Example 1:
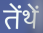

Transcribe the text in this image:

तेंथें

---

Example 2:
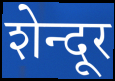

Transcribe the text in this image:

शेन्दूर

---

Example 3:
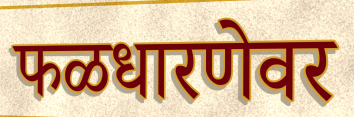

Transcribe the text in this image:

फळधारणेवर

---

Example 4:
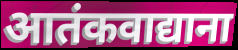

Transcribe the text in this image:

आतंकवाद्याना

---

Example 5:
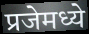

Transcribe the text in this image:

प्रजेमध्ये